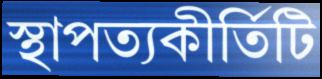
স্থাপত্যকীর্তিটি